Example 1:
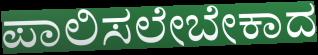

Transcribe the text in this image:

ಪಾಲಿಸಲೇಬೇಕಾದ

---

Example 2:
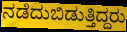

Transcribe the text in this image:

ನಡೆದುಬಿಡುತ್ತಿದ್ದರು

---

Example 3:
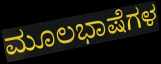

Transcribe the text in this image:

ಮೂಲಭಾಷೆಗಳ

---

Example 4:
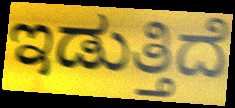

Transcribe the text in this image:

ಇಡುತ್ತಿದೆ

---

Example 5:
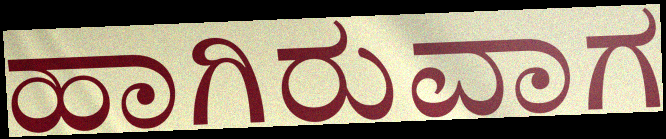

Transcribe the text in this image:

ಹಾಗಿರುವಾಗ